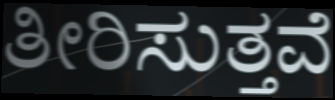
ತೀರಿಸುತ್ತವೆ